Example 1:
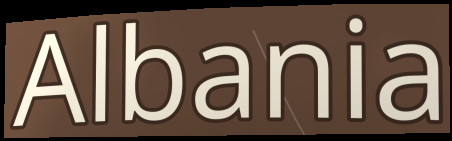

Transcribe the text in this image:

Albania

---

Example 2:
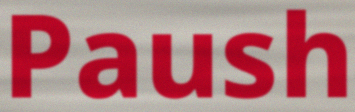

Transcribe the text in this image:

Paush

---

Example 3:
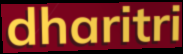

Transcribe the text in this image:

dharitri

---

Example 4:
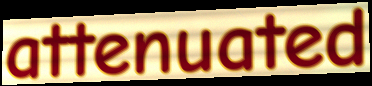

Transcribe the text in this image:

attenuated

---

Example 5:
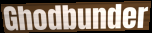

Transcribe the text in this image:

Ghodbunder